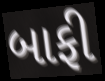
બાફી